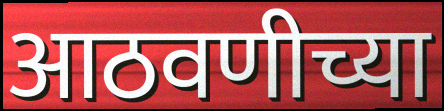
आठवणीच्या